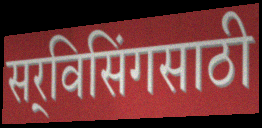
सर्विसिंगसाठी